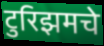
टुरिझमचे